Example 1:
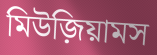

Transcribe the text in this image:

মিউজ়িয়ামস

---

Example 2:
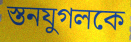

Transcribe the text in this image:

স্তনযুগলকে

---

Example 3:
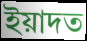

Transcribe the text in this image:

ইয়াদত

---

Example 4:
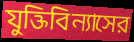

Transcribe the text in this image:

যুক্তিবিন্যাসের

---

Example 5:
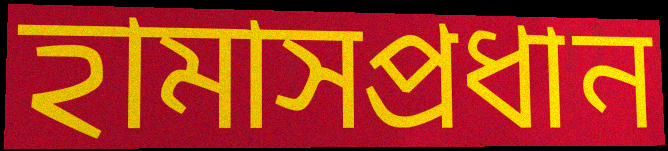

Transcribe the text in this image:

হামাসপ্রধান